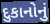
દુકાનોનું